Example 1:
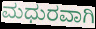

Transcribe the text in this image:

ಮಧುರವಾಗಿ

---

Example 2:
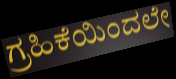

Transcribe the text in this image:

ಗ್ರಹಿಕೆಯಿಂದಲೇ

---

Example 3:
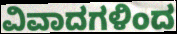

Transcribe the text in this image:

ವಿವಾದಗಳಿಂದ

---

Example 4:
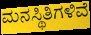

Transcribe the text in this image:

ಮನಸ್ಥಿತಿಗಳಿವೆ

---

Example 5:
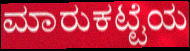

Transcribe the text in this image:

ಮಾರುಕಟ್ಟೆಯ